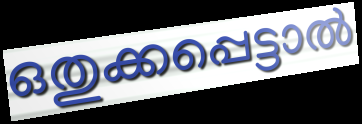
ഒതുക്കപ്പെട്ടാൽ